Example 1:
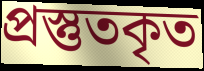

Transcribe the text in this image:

প্রস্তুতকৃত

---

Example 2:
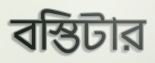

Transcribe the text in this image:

বস্তিটার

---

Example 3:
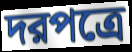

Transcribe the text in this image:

দরপত্রে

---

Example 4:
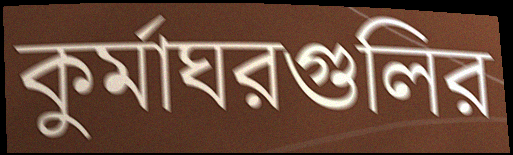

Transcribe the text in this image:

কুর্মাঘরগুলির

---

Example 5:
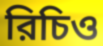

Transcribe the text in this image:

রিচিও